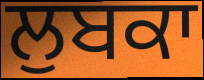
ਲੁਬਕਾ